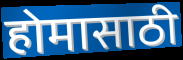
होमासाठी